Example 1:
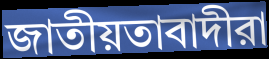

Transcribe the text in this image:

জাতীয়তাবাদীরা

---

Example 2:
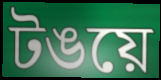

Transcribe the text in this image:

টঙয়ে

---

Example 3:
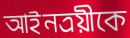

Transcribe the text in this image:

আইনত্রয়ীকে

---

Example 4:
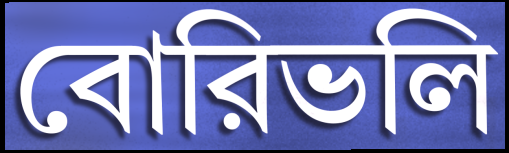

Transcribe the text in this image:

বোরিভলি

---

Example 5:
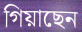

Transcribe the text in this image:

গিয়াছেন